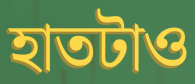
হাতটাও